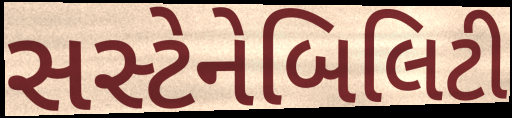
સસ્ટેનેબિલિટી